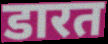
डारत